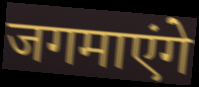
जगमाएंगे